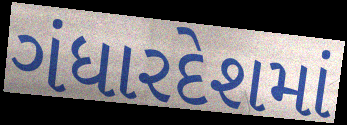
ગંધારદેશમાં